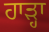
ਹਾੜ੍ਹਾ